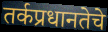
तर्कप्रधानतेचे